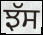
ਝੱਸ